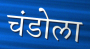
चंडोला